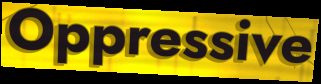
Oppressive